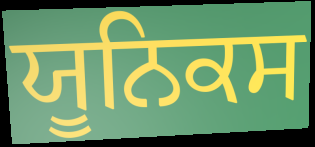
ਯੂਨਿਕਸ